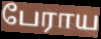
பேராய